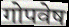
गोपवेष